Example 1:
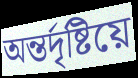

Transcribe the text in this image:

অন্তৰ্দৃষ্টিয়ে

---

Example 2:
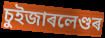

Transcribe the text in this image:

চুইজাৰলেণ্ডৰ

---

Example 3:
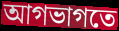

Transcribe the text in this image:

আগভাগতে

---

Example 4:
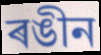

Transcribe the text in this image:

ৰঙীন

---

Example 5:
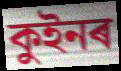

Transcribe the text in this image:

কুইনৰ